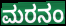
ಮರನಂ